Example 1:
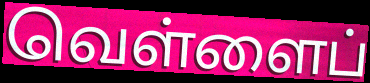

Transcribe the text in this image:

வெள்ளைப்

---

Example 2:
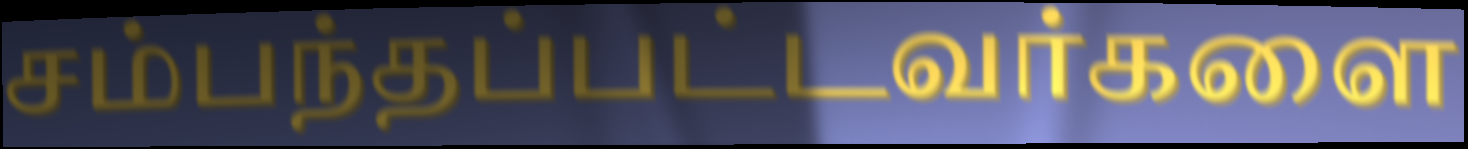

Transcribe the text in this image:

சம்பந்தப்பட்டவர்களை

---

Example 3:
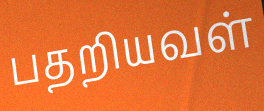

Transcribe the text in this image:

பதறியவள்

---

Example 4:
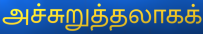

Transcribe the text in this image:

அச்சுறுத்தலாகக்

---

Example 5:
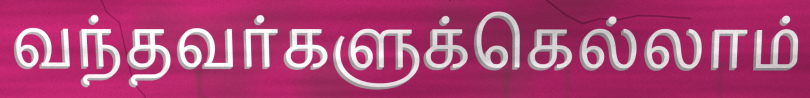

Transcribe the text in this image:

வந்தவர்களுக்கெல்லாம்